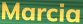
Marcia